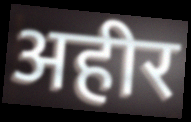
अहीर